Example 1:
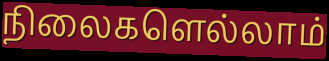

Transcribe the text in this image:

நிலைகளெல்லாம்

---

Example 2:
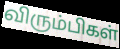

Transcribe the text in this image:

விரும்பிகள்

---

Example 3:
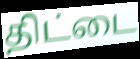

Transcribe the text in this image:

திட்டை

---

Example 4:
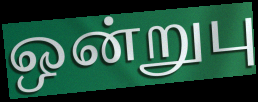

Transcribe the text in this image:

ஒன்றுபு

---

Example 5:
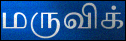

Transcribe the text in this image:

மருவிக்